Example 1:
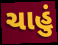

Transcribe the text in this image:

ચાહું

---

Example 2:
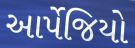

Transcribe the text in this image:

આર્પેજિયો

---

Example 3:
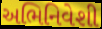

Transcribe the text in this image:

અભિનિવેશી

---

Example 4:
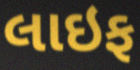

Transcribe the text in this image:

લાઇફ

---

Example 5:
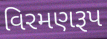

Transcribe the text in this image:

વિરમણરૂપ